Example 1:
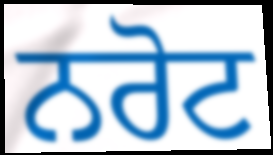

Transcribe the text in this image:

ਨਰੋਟ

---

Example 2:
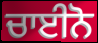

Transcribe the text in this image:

ਚਾਈਨੋ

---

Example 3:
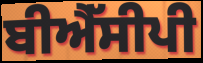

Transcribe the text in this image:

ਬੀਐੱਸੀਪੀ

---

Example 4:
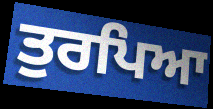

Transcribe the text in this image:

ਤੁਰਪਿਆ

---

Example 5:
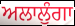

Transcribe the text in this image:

ਅਲਾਲੁੰਗਾ